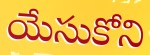
యేసుకోని